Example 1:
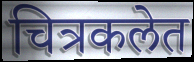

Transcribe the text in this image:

चित्रकलेत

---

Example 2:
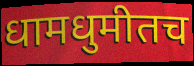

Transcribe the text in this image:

धामधुमीतच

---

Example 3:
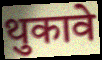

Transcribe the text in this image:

थुकावे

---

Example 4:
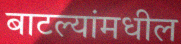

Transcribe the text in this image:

बाटल्यांमधील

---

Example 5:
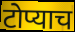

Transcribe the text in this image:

टोप्याच